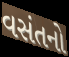
વસંતનો